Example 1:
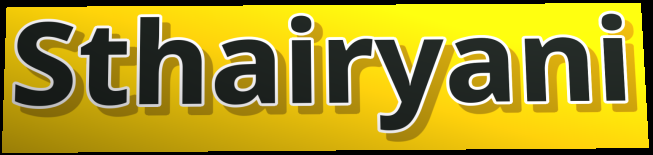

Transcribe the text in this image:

Sthairyani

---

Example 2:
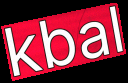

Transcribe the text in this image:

kbal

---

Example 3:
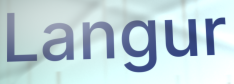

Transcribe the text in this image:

Langur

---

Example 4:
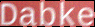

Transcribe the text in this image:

Dabke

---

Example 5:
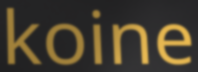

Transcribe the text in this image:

koine